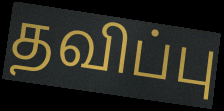
தவிப்பு